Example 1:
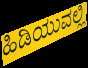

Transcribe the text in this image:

ಹಿಡಿಯುವಲ್ಲಿ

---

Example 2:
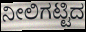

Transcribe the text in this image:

ನೀಲಿಗಟ್ಟಿದ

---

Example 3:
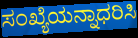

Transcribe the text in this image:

ಸಂಖ್ಯೆಯನ್ನಾಧರಿಸಿ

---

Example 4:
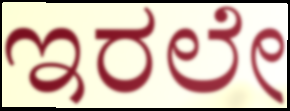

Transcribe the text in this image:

ಇರಲೇ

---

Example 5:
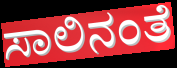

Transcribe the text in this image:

ಸಾಲಿನಂತೆ